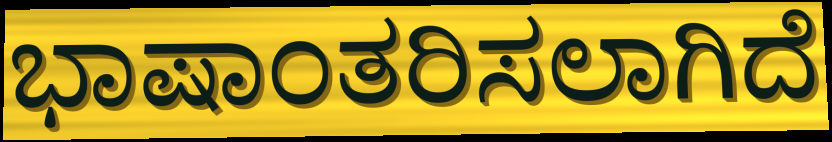
ಭಾಷಾಂತರಿಸಲಾಗಿದೆ